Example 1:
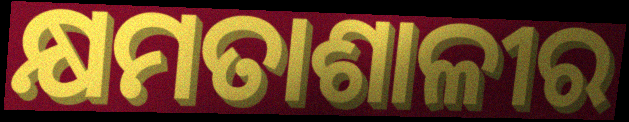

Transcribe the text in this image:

କ୍ଷମତାଶାଳୀର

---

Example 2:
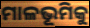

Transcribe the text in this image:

ମାଳଭୂମିକୁ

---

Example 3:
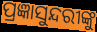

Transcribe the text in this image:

ପ୍ରଜ୍ଞାସୁନ୍ଦରୀଙ୍କୁ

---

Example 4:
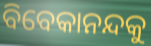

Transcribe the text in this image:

ବିବେକାନନ୍ଦକୁ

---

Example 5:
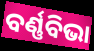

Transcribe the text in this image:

ବର୍ଣ୍ଣବିଭା